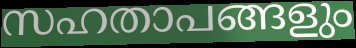
സഹതാപങ്ങളും